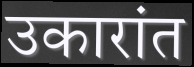
उकारांत